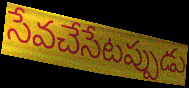
సేవచేసేటప్పుడు